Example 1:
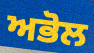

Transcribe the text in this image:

ਅਭੋਲ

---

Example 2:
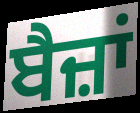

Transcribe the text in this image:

ਬੈਜ਼ਾਂ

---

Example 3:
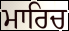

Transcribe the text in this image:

ਮਾਰਿਚ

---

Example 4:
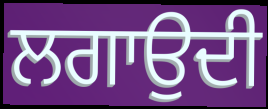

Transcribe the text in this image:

ਲਗਾਉਦੀ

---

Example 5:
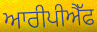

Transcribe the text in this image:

ਆਰੀਪੀਐੱਫ